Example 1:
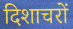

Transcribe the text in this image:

दिशाचरों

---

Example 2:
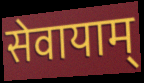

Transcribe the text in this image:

सेवायाम्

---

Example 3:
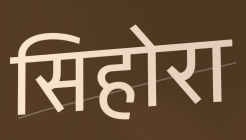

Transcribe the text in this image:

सिहोरा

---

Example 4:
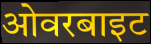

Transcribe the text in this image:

ओवरबाइट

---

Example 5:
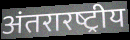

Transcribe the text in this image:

अंतरारष्ट्रीय